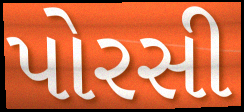
પોરસી